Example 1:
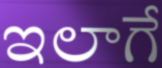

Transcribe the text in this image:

ఇలాగే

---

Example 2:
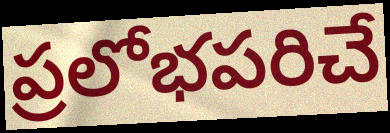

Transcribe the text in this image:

ప్రలోభపరిచే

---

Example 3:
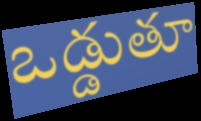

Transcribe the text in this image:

ఒడ్డుతూ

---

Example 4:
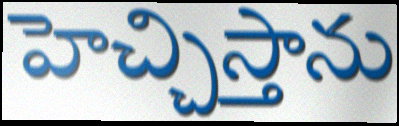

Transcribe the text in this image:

హెచ్చిస్తాను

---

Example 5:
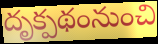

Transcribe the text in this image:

దృక్పథంనుంచి